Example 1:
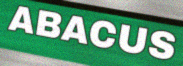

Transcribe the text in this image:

ABACUS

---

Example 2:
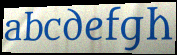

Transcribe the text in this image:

abcdefgh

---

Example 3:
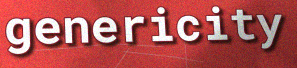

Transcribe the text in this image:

genericity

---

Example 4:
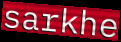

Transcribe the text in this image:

sarkhe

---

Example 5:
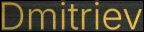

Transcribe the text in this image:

Dmitriev